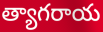
త్యాగరాయ